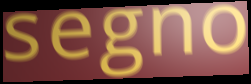
segno